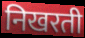
निखरती